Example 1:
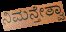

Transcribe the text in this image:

ನಿಮನ್ತೇತ್ವಾ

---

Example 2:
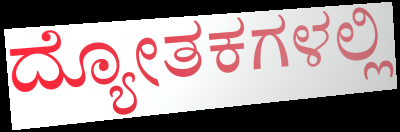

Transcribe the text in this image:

ದ್ಯೋತಕಗಳಲ್ಲಿ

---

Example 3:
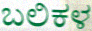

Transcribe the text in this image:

ಬಲಿಕಳ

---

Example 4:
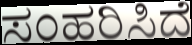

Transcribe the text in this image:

ಸಂಹರಿಸಿದೆ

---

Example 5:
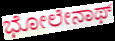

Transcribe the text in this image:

ಭೋಲೇನಾಥ್